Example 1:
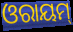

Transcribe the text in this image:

ଓରାୟମ୍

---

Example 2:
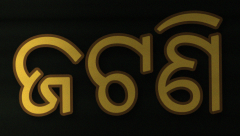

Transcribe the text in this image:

ଜଟଣି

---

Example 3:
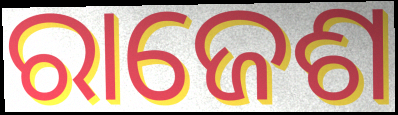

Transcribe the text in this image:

ରାଜେଶ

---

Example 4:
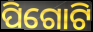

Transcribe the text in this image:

ପିଗୋଟି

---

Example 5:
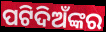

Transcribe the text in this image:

ପଟିଦିଅଁଙ୍କର